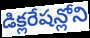
డిక్లరేషన్లోని